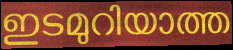
ഇടമുറിയാത്ത